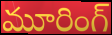
మూరింగ్